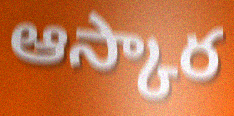
ఆస్కార